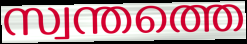
സ്വന്തത്തെ